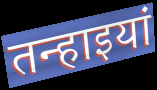
तन्हाइयां